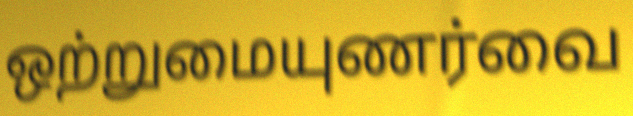
ஒற்றுமையுணர்வை